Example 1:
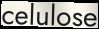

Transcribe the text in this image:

celulose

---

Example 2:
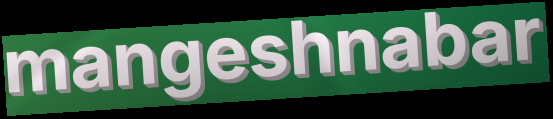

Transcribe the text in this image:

mangeshnabar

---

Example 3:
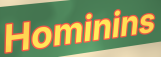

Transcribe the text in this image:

Hominins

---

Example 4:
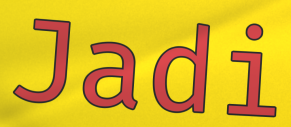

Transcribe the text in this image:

Jadi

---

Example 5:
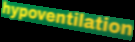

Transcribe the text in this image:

hypoventilation